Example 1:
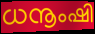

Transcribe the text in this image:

ധനൂംഷി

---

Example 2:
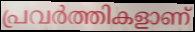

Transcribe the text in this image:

പ്രവർത്തികളാണ്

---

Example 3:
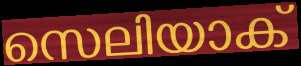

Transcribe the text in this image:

സെലിയാക്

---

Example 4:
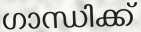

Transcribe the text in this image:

ഗാന്ധിക്ക്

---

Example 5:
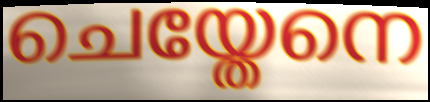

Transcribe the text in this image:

ചെയ്തേനെ